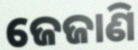
ଜେଜାଣି